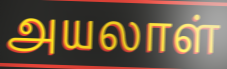
அயலாள்